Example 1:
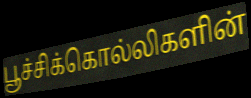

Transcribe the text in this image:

பூச்சிக்கொல்லிகளின்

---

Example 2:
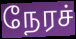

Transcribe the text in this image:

நேரச்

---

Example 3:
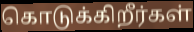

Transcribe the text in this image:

கொடுக்கிறீர்கள்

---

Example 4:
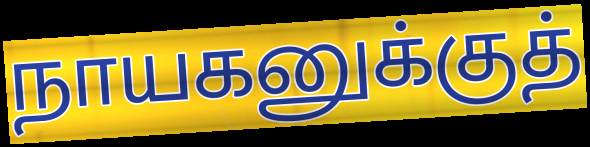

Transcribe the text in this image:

நாயகனுக்குத்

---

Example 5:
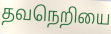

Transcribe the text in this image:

தவநெறியை